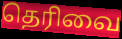
தெரிவை